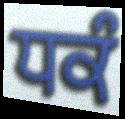
ਧਕੰ